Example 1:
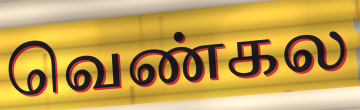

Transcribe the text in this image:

வெண்கல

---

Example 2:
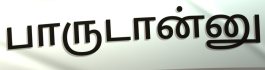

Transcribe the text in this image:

பாருடான்னு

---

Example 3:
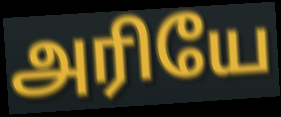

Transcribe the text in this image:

அரியே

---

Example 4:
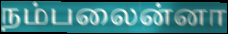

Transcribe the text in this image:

நம்பலைன்னா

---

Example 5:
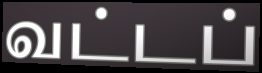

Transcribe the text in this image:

வட்டப்